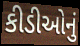
કીડીઓનું